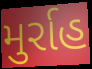
મુર્રાહ